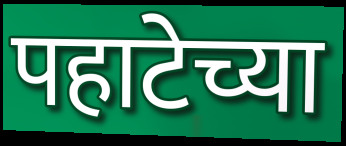
पहाटेच्या